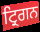
ਟ੍ਰਿਗਨ